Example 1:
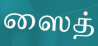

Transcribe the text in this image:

ஸைத்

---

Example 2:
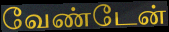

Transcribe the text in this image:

வேண்டேன்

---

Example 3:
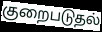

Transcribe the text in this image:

குறைபடுதல்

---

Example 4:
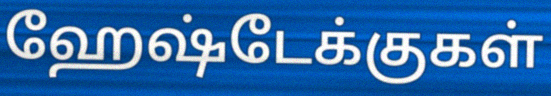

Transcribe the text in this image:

ஹேஷ்டேக்குகள்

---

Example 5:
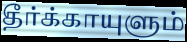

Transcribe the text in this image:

தீர்க்காயுளும்